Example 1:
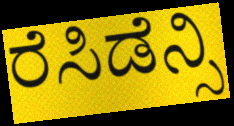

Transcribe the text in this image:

ರೆಸಿಡೆನ್ಸಿ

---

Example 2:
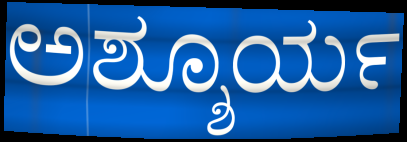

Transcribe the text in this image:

ಅಶ್ಶೂರ್ಯ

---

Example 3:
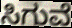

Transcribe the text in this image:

ಸಿಗುವೆ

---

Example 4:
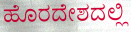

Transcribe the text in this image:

ಹೊರದೇಶದಲ್ಲಿ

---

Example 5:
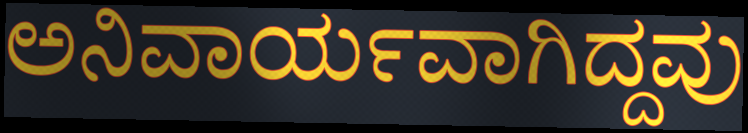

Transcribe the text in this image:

ಅನಿವಾರ್ಯವಾಗಿದ್ದವು